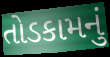
તોડકામનું